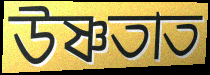
উষ্ণতাত